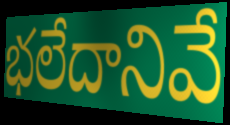
భలేదానివే